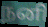
நனி